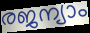
രജന്യാം